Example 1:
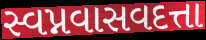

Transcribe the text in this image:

સ્વપ્નવાસવદત્તા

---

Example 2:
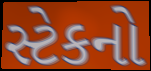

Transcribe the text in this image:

સ્ટેકનો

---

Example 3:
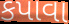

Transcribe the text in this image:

કપાવા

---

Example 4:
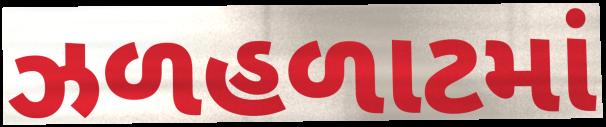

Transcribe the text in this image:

ઝળહળાટમાં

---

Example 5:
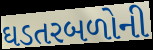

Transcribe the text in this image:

ઘડતરબળોની